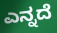
ಎನ್ನದೆ